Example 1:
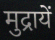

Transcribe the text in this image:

मुद्रायें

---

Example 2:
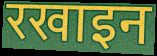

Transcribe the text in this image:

रखाइन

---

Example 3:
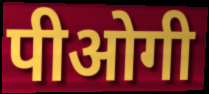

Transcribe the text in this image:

पीओगी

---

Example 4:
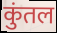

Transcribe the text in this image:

कुंतल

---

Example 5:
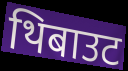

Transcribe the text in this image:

थिबाउट